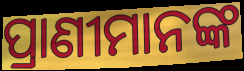
ପ୍ରାଣୀମାନଙ୍କ